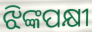
ଝିଙ୍କପକ୍ଷୀ